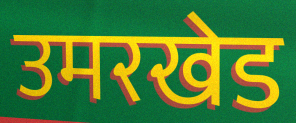
उमरखेड